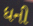
ધની